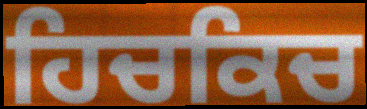
ਹਿਚਕਿਚ